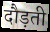
दौड़ती